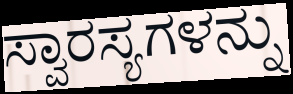
ಸ್ವಾರಸ್ಯಗಳನ್ನು